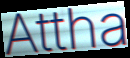
Attha